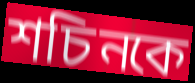
শচিনকে